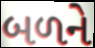
બળને